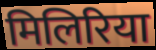
मिलिरिया